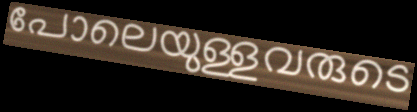
പോലെയുള്ളവരുടെ